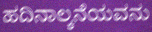
ಹದಿನಾಲ್ಕನೆಯವನು